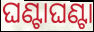
ଘଣ୍ଟାଘଣ୍ଟା